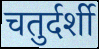
चतुर्दर्शी